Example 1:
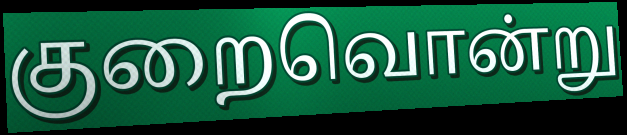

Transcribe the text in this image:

குறைவொன்று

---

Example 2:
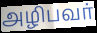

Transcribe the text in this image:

அழிபவர்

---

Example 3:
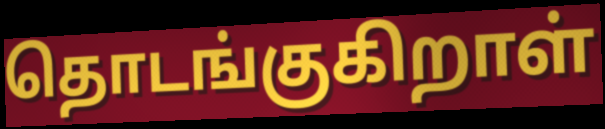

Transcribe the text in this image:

தொடங்குகிறாள்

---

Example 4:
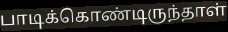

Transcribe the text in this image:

பாடிக்கொண்டிருந்தாள்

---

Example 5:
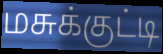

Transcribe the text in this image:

மசுக்குட்டி